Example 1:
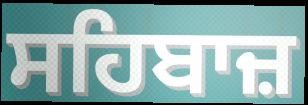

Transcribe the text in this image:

ਸਹਿਬਾਜ਼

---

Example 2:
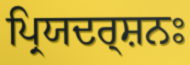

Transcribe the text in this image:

ਪ੍ਰਿਯਦਰ੍ਸ਼ਨਃ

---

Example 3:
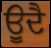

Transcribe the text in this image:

ਊੁਦੈ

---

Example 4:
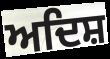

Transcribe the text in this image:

ਅਦਿਸ਼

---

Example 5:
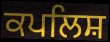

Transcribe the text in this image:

ਕਪਲਿਸ਼